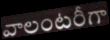
వాలంటరీగా